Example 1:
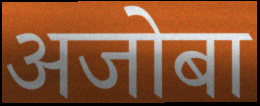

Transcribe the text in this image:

अजोबा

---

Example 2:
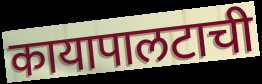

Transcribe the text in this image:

कायापालटाची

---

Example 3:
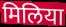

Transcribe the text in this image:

मिलिया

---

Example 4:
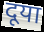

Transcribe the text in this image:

दूया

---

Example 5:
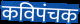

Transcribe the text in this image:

कविपंचक